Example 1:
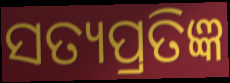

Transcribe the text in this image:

ସତ୍ୟପ୍ରତିଜ୍ଞ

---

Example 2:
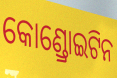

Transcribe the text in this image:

କୋଣ୍ଡ୍ରୋଇଟିନ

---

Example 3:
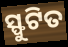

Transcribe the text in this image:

ସ୍ଫୁଟିତ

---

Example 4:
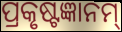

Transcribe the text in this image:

ପ୍ରକୃଷ୍ଟଜ୍ଞାନମ୍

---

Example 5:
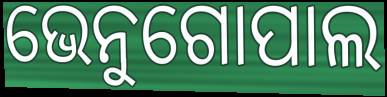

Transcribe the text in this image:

ଭେନୁଗୋପାଲ